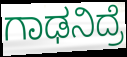
ಗಾಢನಿದ್ರೆ